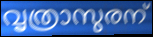
വൃത്രാസുരന്